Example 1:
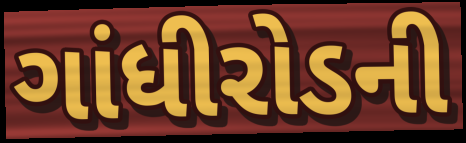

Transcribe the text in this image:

ગાંધીરોડની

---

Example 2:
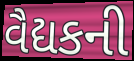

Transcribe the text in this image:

વૈદ્યકની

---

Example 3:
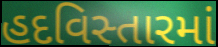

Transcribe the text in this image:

હદવિસ્તારમાં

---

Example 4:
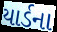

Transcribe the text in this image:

યાર્ડના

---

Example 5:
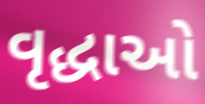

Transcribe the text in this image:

વૃદ્ધાઓ